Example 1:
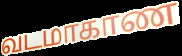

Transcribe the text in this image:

வடமாகாண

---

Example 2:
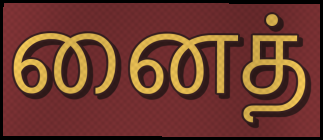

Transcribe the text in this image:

னைத்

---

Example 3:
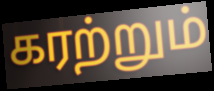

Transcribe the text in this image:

கரற்றும்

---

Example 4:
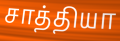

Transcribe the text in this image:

சாத்தியா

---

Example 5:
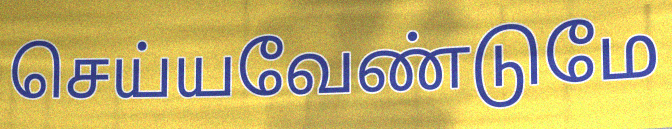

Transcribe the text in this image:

செய்யவேண்டுமே